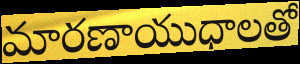
మారణాయుధాలతో